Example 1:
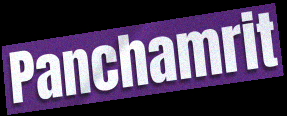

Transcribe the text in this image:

Panchamrit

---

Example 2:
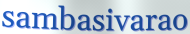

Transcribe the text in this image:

sambasivarao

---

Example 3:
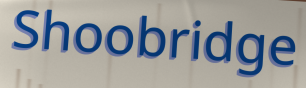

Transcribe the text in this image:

Shoobridge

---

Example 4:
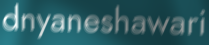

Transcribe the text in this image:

dnyaneshawari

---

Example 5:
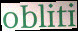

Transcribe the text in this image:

obliti